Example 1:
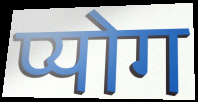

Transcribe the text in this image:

प्योग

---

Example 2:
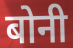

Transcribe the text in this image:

बोनी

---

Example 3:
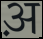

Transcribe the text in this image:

अ़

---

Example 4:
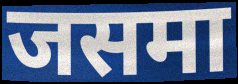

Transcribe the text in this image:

जसमा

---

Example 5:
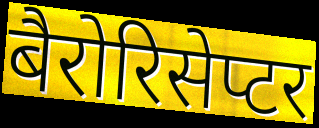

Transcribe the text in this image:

बैरोरिसेप्टर